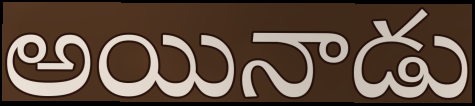
అయినాడు